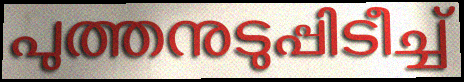
പുത്തനുടുപ്പിടീച്ച്